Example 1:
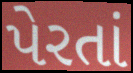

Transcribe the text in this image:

પેરતાં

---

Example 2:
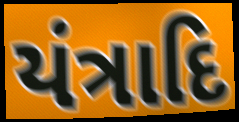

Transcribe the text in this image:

યંત્રાદિ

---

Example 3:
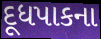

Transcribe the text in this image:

દૂધપાકના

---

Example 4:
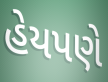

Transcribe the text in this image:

હેયપણે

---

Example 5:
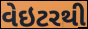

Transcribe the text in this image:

વેઇટરથી